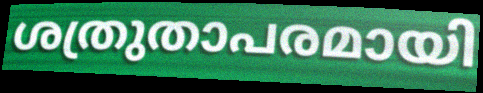
ശത്രുതാപരമായി